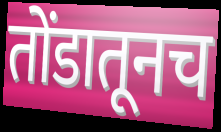
तोंडातूनच